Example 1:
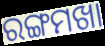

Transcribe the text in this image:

ରଙ୍ଗମଖା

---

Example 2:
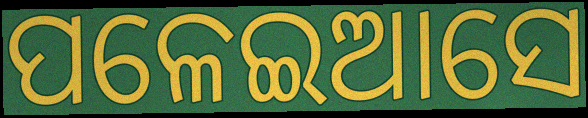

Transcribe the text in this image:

ପଳେଇଆସେ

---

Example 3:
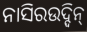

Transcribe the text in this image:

ନାସିରଉଦ୍ଦିନ୍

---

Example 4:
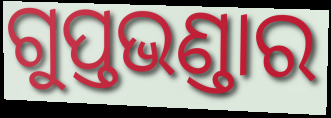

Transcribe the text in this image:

ଗୁପ୍ତଭଣ୍ଡାର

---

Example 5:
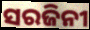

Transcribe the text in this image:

ସରଜିନୀ